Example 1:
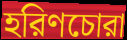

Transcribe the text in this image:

হরিণচোরা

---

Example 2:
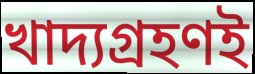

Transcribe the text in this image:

খাদ্যগ্রহণই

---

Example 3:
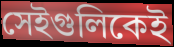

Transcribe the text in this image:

সেইগুলিকেই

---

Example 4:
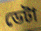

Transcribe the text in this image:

ডেটা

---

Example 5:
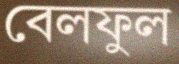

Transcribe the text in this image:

বেলফুল